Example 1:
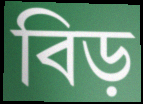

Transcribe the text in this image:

বিড়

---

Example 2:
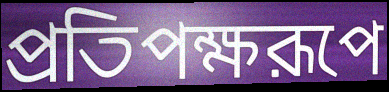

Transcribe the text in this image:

প্রতিপক্ষরূপে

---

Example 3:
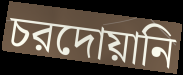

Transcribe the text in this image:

চরদোয়ানি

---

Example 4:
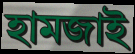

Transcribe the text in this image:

হামজাই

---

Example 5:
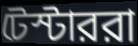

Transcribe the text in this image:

টেস্টাররা